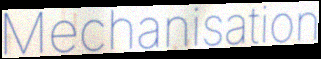
Mechanisation